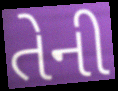
તેની